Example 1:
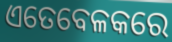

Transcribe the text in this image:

ଏତେବେଳକରେ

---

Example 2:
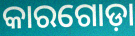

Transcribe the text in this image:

କାରଗୋଡ଼ା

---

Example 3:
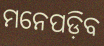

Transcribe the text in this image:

ମନେପଡ଼ିବ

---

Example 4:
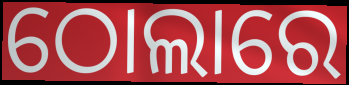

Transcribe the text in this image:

ଠୋଲାରେ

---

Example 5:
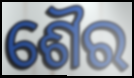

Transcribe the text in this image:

ଶୈର